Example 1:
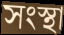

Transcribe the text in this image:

সংস্থা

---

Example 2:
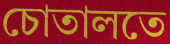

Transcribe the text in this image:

চোতালতে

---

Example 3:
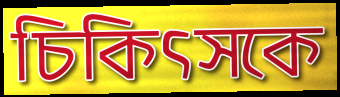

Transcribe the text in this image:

চিকিৎসকে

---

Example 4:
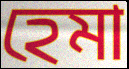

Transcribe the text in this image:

হেমা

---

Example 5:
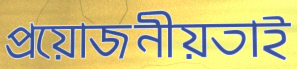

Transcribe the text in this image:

প্ৰয়োজনীয়তাই